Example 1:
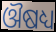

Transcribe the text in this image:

ଔଷଧ୍ୟ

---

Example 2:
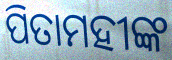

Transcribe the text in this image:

ପିତାମହୀଙ୍କ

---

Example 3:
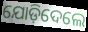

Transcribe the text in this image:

ଯୋଡ଼ିଦେଲେ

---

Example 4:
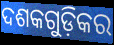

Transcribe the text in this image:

ଦଶକଗୁଡ଼ିକର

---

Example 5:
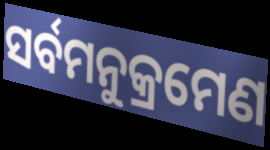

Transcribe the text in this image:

ସର୍ବମନୁକ୍ରମେଣ